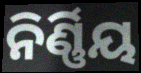
ନିର୍ଣ୍ଣିୟ